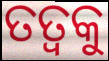
ତତ୍ୱକୁ